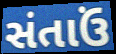
સંતાઉં